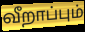
வீறாப்பும்